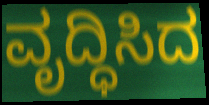
ವೃದ್ಧಿಸಿದ